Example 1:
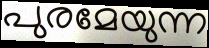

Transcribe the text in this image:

പുരമേയുന്ന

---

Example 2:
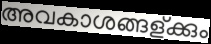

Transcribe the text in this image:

അവകാശങ്ങള്ക്കും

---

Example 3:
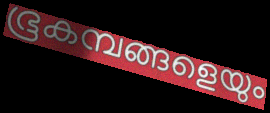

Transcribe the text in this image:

ഭൂകമ്പങ്ങളെയും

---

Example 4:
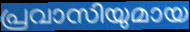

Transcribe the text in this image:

പ്രവാസിയുമായ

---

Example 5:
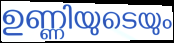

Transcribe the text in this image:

ഉണ്ണിയുടെയും